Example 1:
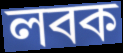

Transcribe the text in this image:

লবক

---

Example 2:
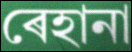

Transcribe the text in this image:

ৰেহানা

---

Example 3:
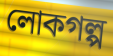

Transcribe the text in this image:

লোকগল্প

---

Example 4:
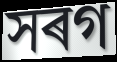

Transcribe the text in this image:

সৰগ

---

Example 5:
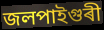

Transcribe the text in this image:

জলপাইগুৰী